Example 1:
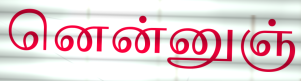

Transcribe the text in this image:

னென்னுஞ்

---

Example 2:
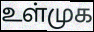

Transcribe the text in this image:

உள்முக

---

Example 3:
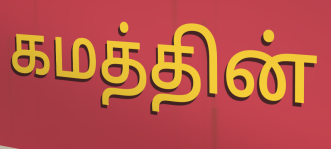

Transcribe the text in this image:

கமத்தின்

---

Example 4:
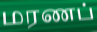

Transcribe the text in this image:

மரணப்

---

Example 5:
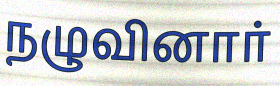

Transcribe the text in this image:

நழுவினார்